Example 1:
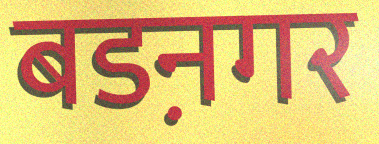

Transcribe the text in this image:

बडऩगर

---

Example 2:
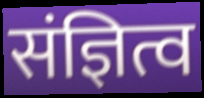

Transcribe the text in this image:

संज्ञित्व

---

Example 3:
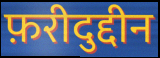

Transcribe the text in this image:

फ़रीदुद्दीन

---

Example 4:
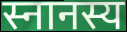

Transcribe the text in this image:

स्नानस्य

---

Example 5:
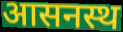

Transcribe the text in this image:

आसनस्थ